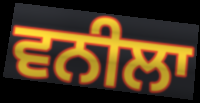
ਵਨੀਲਾ